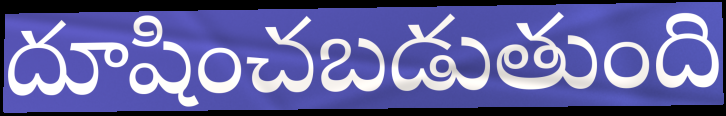
దూషించబడుతుంది